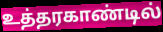
உத்தரகாண்டில்